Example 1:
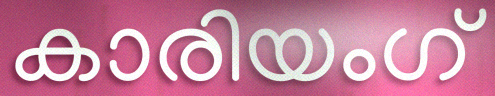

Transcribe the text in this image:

കാരിയംഗ്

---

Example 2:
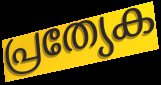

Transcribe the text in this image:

പ്രത്യേക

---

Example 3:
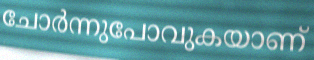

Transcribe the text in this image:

ചോർന്നുപോവുകയാണ്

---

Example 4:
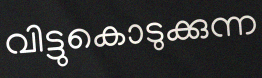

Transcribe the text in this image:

വിട്ടുകൊടുക്കുന്ന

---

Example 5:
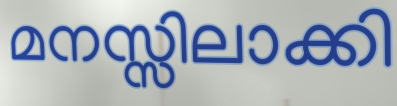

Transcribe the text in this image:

മനസ്സിലാക്കി